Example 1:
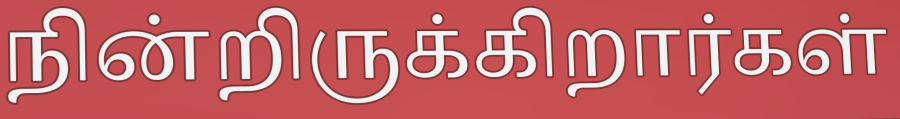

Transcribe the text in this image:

நின்றிருக்கிறார்கள்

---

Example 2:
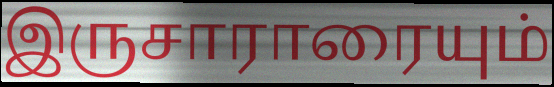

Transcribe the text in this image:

இருசாராரையும்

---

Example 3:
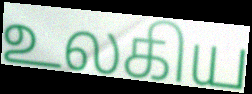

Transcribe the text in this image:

உலகிய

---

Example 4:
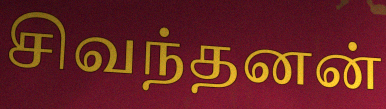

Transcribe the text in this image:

சிவந்தனன்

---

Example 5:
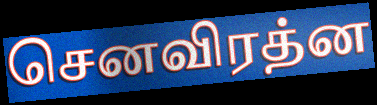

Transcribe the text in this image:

செனவிரத்ன